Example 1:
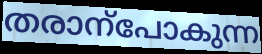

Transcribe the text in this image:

തരാന്പോകുന്ന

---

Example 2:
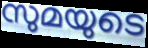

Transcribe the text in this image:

സുമയുടെ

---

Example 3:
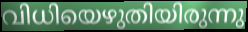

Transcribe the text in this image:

വിധിയെഴുതിയിരുന്നു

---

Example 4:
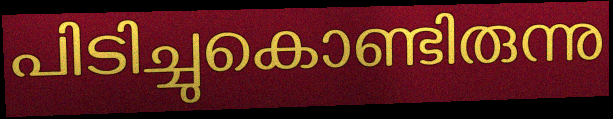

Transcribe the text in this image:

പിടിച്ചുകൊണ്ടിരുന്നു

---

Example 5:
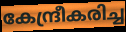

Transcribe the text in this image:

കേന്ദ്രീകരിച്ച